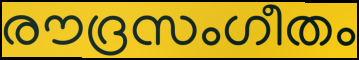
രൗദ്രസംഗീതം